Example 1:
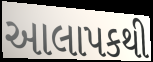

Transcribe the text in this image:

આલાપકથી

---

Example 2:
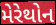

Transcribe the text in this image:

મેરેથોન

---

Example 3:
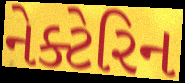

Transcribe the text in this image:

નેક્ટેરિન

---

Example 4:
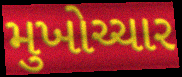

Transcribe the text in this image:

મુખોચ્ચાર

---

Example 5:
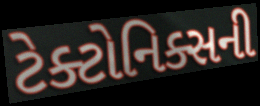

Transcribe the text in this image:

ટેક્ટોનિક્સની